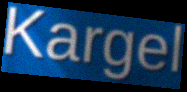
Kargel